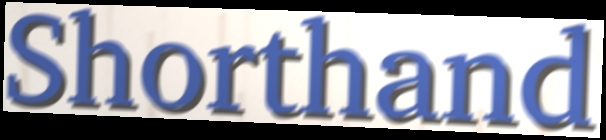
Shorthand